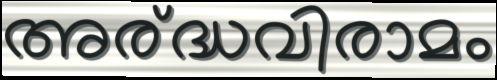
അര്ദ്ധവിരാമം